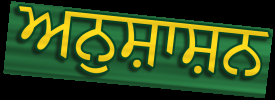
ਅਨੁਸ਼ਾਸ਼ਨ